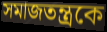
সমাজতন্ত্রকে